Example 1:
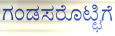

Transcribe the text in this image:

ಗಂಡಸರೊಟ್ಟಿಗೆ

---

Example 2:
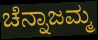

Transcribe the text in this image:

ಚೆನ್ನಾಜಮ್ಮ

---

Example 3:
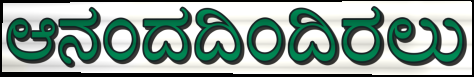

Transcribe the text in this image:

ಆನಂದದಿಂದಿರಲು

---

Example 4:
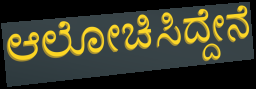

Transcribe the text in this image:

ಆಲೋಚಿಸಿದ್ದೇನೆ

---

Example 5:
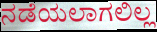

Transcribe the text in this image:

ನಡೆಯಲಾಗಲಿಲ್ಲ